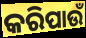
କରିପାଉଁ